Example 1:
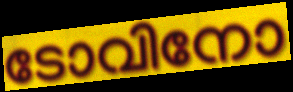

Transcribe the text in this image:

ടോവിനോ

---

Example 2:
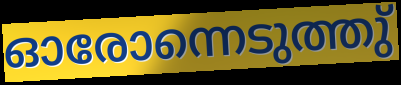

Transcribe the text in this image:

ഓരോന്നെടുത്തു്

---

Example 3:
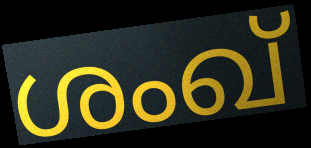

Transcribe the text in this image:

ശംഖ്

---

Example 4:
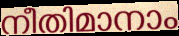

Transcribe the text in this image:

നീതിമാനാം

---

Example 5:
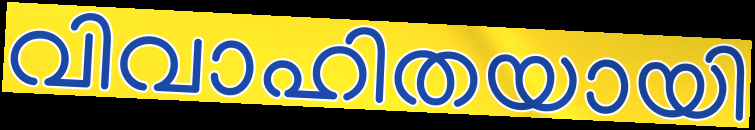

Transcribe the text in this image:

വിവാഹിതയായി